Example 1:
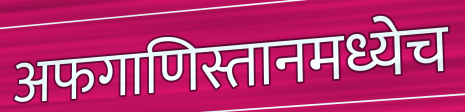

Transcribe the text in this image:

अफगाणिस्तानमध्येच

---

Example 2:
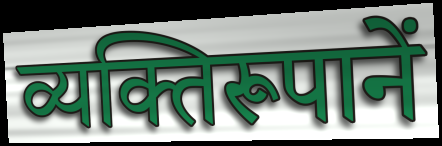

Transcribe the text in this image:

व्यक्तिरूपानें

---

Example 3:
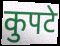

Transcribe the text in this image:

कुपटे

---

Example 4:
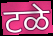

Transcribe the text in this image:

टळे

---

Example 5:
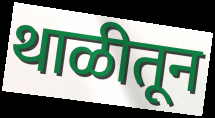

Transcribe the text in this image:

थाळीतून